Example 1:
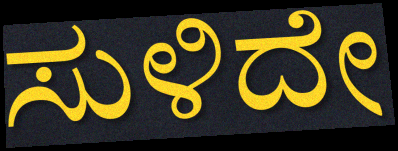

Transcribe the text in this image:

ಸುಳಿದೇ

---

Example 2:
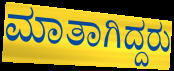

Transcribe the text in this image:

ಮಾತಾಗಿದ್ದರು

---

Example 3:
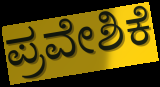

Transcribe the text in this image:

ಪ್ರವೇಶಿಕೆ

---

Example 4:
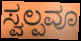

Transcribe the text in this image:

ಸ್ವಲ್ಪವೂ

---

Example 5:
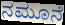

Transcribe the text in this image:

ನಮೂನೆ